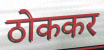
ठोककर